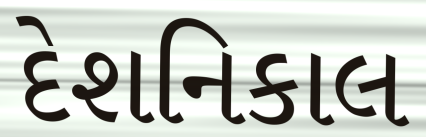
દેશનિકાલ